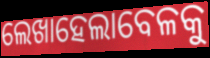
ଲେଖାହେଲାବେଳକୁ